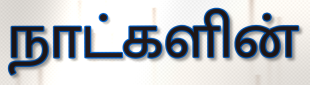
நாட்களின்